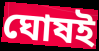
ঘোষই